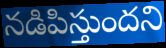
నడిపిస్తుందని